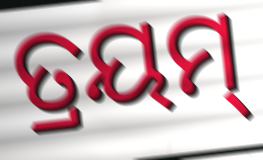
ତ୍ରୟମ୍